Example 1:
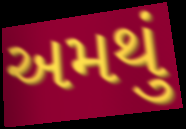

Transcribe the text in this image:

અમથું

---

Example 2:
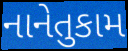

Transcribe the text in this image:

નાનેતુકામ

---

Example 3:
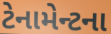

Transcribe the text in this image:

ટેનામેન્ટના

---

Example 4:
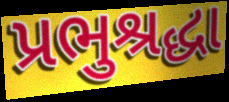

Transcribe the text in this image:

પ્રભુશ્રદ્ધા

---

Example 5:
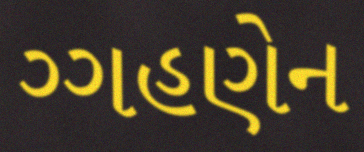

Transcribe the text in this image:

ગ્ગહણેન